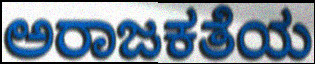
ಅರಾಜಕತೆಯ